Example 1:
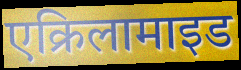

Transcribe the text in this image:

एक्रिलामाइड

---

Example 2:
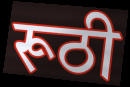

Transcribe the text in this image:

रूठी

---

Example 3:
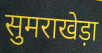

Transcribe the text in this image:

सुमराखेड़ा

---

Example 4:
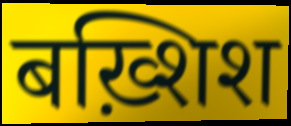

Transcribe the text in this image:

बख़्शिश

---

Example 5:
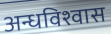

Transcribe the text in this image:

अन्धविश्वास